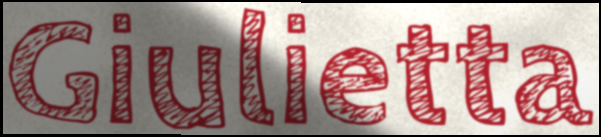
Giulietta